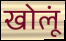
खोलूं